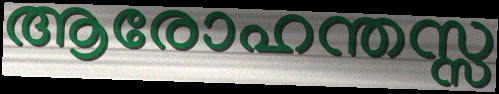
ആരോഹന്തസ്സ